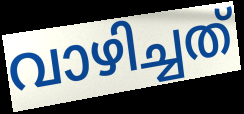
വാഴിച്ചത്